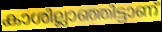
കാശില്ലാഞ്ഞിട്ടാണ്